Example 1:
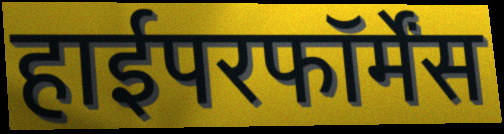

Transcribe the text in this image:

हाईपरफॉर्मेंस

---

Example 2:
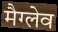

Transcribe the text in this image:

मैग्लेव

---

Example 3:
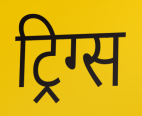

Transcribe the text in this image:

ट्रिग्स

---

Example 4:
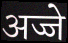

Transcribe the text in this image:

अज्जे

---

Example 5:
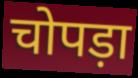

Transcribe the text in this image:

चोपड़ा